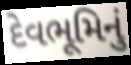
દેવભૂમિનું